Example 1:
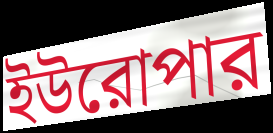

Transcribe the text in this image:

ইউরোপার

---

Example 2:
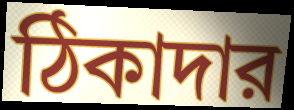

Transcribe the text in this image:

ঠিকাদার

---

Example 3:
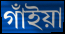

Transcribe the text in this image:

গাঁইয়া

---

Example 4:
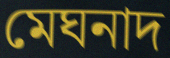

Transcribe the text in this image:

মেঘনাদ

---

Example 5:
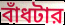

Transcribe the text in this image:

বাঁধটার